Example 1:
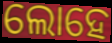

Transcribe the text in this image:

ଲୋହେ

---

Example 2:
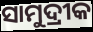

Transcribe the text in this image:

ସାମୁଦ୍ରୀକ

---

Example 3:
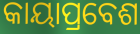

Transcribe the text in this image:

କାୟାପ୍ରବେଶ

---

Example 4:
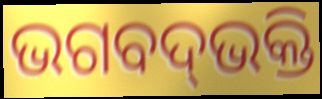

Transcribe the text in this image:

ଭଗବଦ୍‌ଭକ୍ତି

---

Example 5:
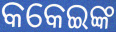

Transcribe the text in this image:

କକେଇଙ୍କ